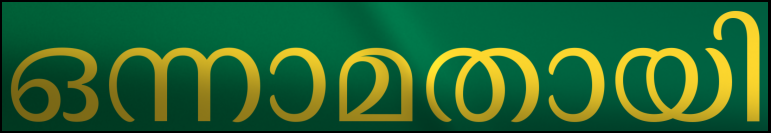
ഒന്നാമതായി